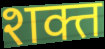
शक्त